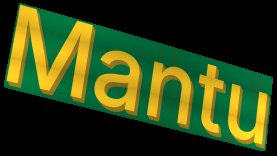
Mantu